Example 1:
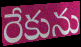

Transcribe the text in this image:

రేకును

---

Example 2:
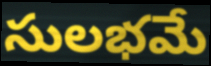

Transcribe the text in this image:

సులభమే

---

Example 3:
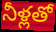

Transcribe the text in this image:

నీళ్లతో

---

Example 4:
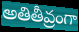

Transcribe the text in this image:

అతితీవ్రంగా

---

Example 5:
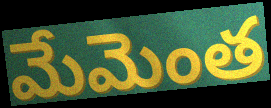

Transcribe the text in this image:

మేమెంత